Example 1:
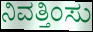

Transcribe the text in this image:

ನಿವತ್ತಿಂಸು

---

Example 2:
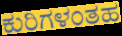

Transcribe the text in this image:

ಕುರಿಗಳಂತಹ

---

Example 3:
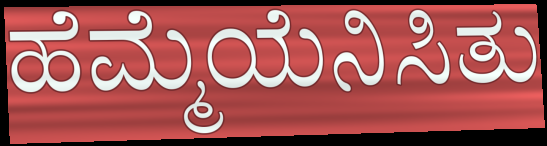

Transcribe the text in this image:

ಹೆಮ್ಮೆಯೆನಿಸಿತು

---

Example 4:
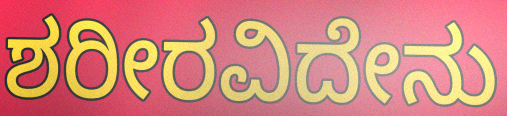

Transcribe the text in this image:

ಶರೀರವಿದೇನು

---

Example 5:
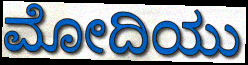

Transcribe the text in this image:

ಮೋದಿಯು